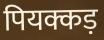
पियक्कड़